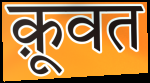
क़ूवत